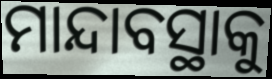
ମାନ୍ଦାବସ୍ଥାକୁ